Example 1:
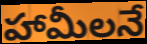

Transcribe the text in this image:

హామీలనే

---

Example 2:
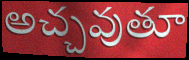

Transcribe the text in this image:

అచ్చవుతూ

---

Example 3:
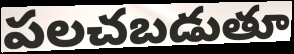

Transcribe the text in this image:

పలచబడుతూ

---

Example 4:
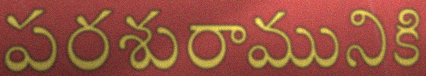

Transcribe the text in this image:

పరశురామునికి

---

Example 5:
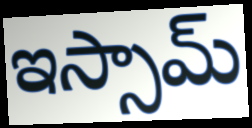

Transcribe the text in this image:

ఇస్సామ్